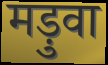
मड़ुवा